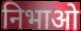
निभाओ